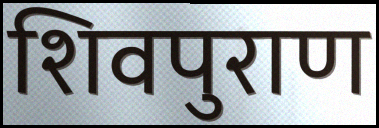
शिवपुराण